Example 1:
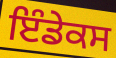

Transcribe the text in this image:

ਇੰਡੇਕਸ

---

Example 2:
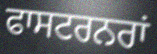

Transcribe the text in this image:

ਫਾਸਟਰਨਰਾਂ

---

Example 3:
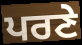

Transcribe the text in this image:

ਪਰਣੇ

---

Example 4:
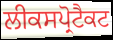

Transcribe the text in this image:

ਲੀਕਸਪ੍ਰੋਟੈਕਟ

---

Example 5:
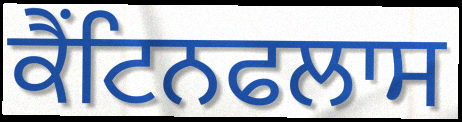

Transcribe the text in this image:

ਕੈਂਟਿਨਫਲਾਸ